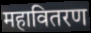
महावितरण